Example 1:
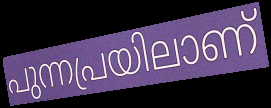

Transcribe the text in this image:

പുന്നപ്രയിലാണ്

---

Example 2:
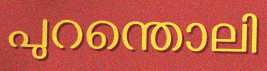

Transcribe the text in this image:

പുറന്തൊലി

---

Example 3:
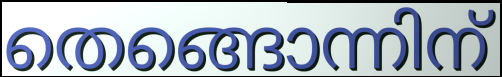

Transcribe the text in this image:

തെങ്ങൊന്നിന്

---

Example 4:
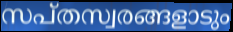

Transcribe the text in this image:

സപ്തസ്വരങ്ങളാടും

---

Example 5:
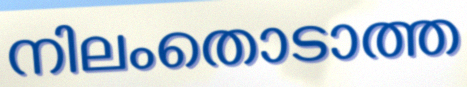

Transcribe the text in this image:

നിലംതൊടാത്ത